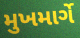
મુખમાર્ગે